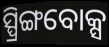
ସ୍ପ୍ରିଙ୍ଗବୋକ୍ସ